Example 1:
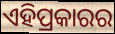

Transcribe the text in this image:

ଏହିପ୍ରକାରର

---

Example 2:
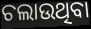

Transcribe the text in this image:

ଚଲାଉଥିବା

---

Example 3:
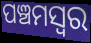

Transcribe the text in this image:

ପଞ୍ଚମସ୍ଵର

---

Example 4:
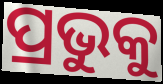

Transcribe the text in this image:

ପ୍ରଭୁକୁ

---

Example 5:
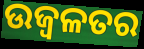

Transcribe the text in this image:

ଉଜ୍ବଳତର